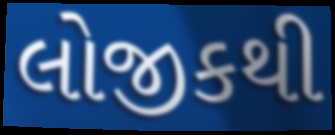
લોજીકથી